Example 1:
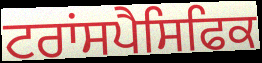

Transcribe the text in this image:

ਟਰਾਂਸਪੈਸਿਫਿਕ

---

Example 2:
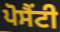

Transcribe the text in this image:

ਪੋਸੈਂਟੀ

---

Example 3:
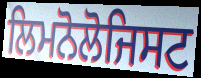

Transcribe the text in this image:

ਲਿਮਨੋਲੋਜਿਸਟ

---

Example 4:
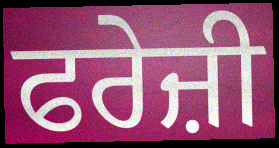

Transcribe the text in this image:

ਫਰੇਜ਼ੀ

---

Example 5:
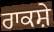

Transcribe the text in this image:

ਰਾਕਸ਼ੇ